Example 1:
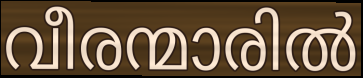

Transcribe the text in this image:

വീരന്മാരിൽ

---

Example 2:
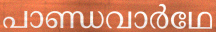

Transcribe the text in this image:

പാണ്ഡവാർഥേ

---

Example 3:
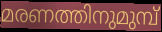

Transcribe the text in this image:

മരണത്തിനുമുമ്പ്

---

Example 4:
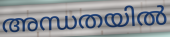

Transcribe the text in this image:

അന്ധതയിൽ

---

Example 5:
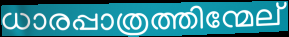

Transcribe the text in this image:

ധാരപ്പാത്രത്തിന്മേല്